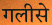
गलीसे